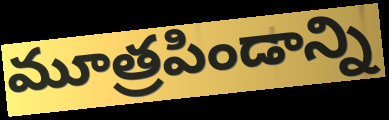
మూత్రపిండాన్ని